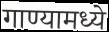
गाण्यामध्ये